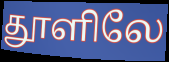
தூளிலே